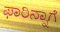
ಫಾರಿನ್ನಾಗೆ